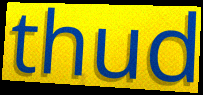
thud